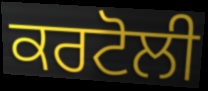
ਕਰਟੋਲੀ